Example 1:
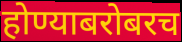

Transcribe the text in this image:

होण्याबरोबरच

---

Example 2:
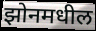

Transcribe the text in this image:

झोनमधील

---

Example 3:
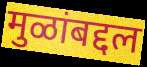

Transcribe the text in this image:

मुळांबद्दल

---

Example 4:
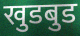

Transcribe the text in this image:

खुडबुड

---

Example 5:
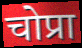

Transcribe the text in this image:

चोप्रा